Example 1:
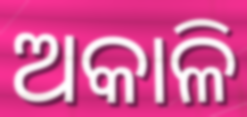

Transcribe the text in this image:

ଅକାଳି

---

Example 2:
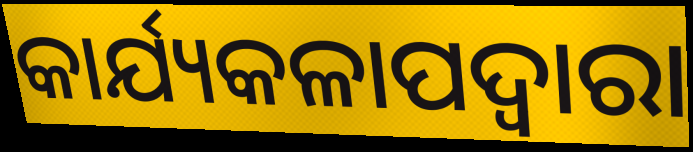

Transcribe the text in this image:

କାର୍ଯ୍ୟକଳାପଦ୍ବାରା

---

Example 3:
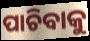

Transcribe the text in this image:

ପାଚିବାକୁ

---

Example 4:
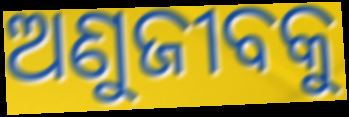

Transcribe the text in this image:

ଅଣୁଜୀବକୁ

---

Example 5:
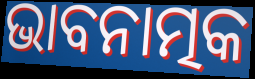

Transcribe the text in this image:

ଭାବନାତ୍ମକ